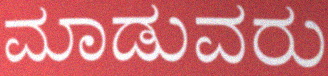
ಮಾಡುವರು